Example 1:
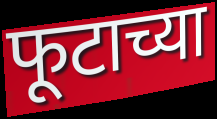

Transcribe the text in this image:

फूटाच्या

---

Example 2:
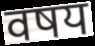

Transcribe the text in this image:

वषय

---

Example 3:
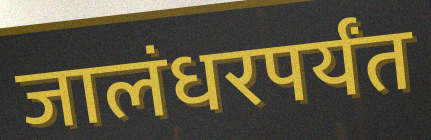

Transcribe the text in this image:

जालंधरपर्यंत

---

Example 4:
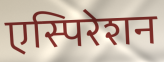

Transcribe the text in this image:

एस्पिरेशन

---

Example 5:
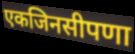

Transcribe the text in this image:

एकजिनसीपणा